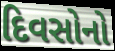
દિવસોનો